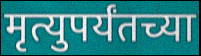
मृत्युपर्यंतच्या